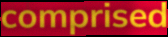
comprised